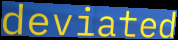
deviated